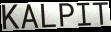
KALPIT